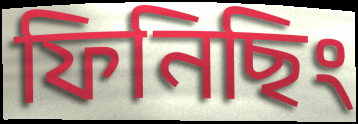
ফিনিছিং